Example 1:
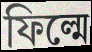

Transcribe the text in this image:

ফিল্মে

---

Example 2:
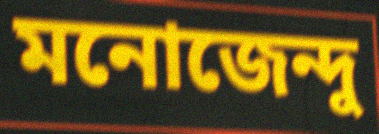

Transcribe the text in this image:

মনোজেন্দু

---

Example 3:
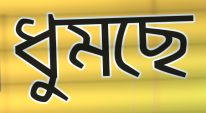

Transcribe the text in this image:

ধুমছে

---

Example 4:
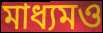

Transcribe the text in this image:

মাধ্যমও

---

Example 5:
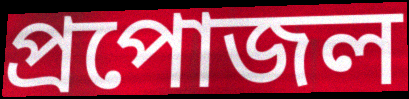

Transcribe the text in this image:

প্রপোজল